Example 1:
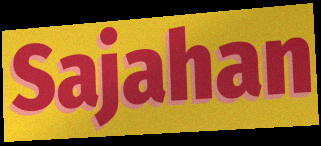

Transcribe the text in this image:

Sajahan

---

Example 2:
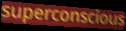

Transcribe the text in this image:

superconscious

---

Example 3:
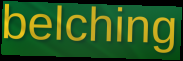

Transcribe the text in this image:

belching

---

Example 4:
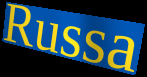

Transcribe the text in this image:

Russa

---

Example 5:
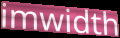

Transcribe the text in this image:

imwidth